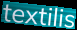
textilis